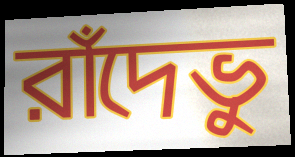
রাঁদেভু